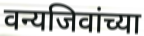
वन्यजिवांच्या